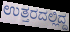
ಉತ್ತರದಲ್ಲಿದ್ದ